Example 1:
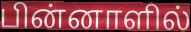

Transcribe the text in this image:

பின்னாளில்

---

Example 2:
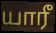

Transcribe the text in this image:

யாரீ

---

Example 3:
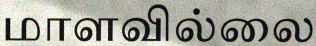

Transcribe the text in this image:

மாளவில்லை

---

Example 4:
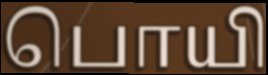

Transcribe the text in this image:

பொயி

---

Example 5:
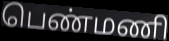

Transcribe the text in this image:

பெண்மணி